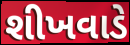
શીખવાડે